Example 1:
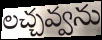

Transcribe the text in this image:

లచ్చవ్వను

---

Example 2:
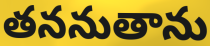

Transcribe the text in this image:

తననుతాను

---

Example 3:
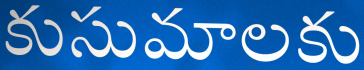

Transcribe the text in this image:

కుసుమాలకు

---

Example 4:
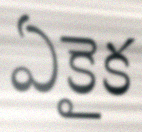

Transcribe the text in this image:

ఏకైక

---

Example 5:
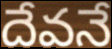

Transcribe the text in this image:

దేవనే